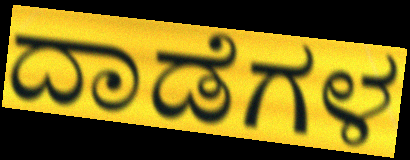
ದಾಡೆಗಳ